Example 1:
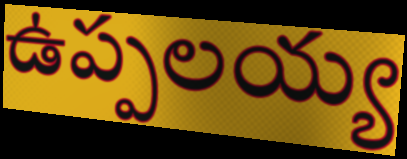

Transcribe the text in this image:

ఉప్పలయ్య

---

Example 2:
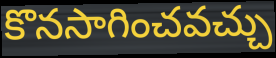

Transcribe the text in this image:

కొనసాగించవచ్చు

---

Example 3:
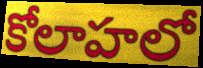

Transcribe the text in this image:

కోలాహలో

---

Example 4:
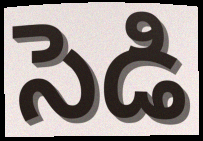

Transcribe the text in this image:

సెడి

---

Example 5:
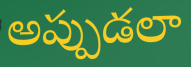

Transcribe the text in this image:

అప్పుడలా